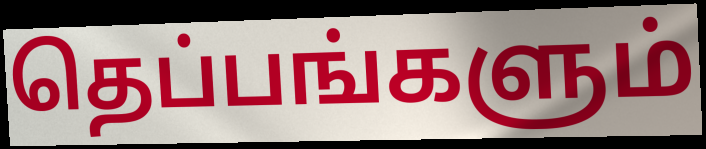
தெப்பங்களும்